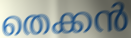
തെക്കൻ